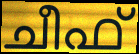
ചീഫ്